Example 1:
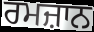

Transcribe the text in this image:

ਰਮਜ਼ਾਨ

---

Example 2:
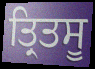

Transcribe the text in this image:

ਤ੍ਰਿਤਸੂ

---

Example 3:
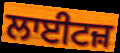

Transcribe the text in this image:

ਲਾਈਟਜ਼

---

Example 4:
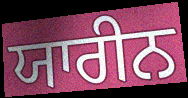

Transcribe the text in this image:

ਯਾਰੀਨ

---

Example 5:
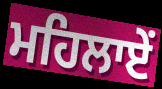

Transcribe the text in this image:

ਮਹਿਲਾਏਂ